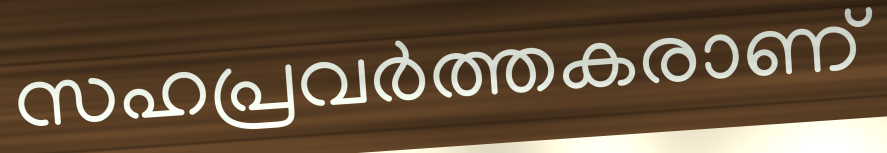
സഹപ്രവർത്തകരാണ്